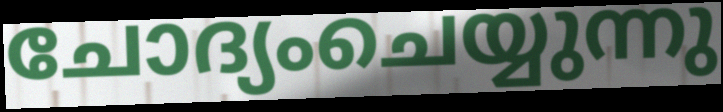
ചോദ്യംചെയ്യുന്നു